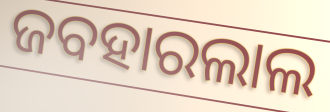
ଜବହାରଲାଲ